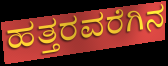
ಹತ್ತರವರೆಗಿನ